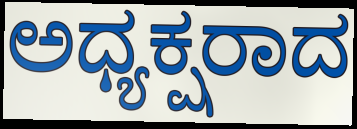
ಅಧ್ಯಕ್ಷರಾದ